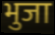
भुजा